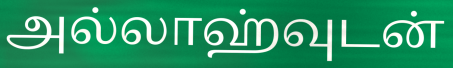
அல்லாஹ்வுடன்